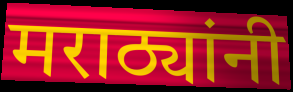
मराठ्यांनी